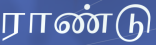
ராண்டு